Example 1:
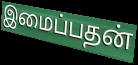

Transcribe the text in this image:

இமைப்பதன்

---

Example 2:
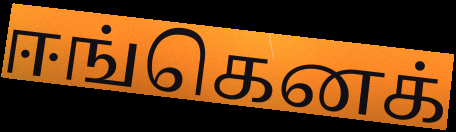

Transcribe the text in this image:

ஈங்கெனக்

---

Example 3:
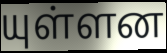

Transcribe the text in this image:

யுள்ளன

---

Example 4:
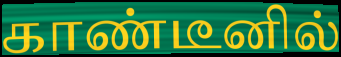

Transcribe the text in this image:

காண்டீனில்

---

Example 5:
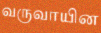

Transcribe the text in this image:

வருவாயின